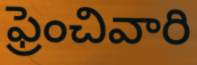
ఫ్రెంచివారి